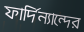
ফার্দিন্যান্দের